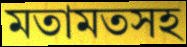
মতামতসহ